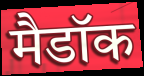
मैडॉक